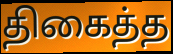
திகைத்த